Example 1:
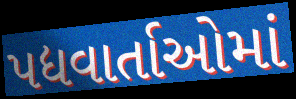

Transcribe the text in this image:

પદ્યવાર્તાઓમાં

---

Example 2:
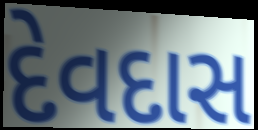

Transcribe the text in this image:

દેવદાસ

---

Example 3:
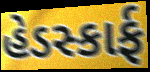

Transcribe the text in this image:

હેડસ્કાર્ફ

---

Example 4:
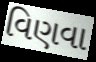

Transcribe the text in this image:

વિણવા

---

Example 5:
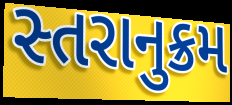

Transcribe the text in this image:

સ્તરાનુક્રમ